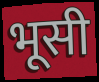
भूसी